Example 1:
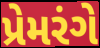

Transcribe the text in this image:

પ્રેમરંગે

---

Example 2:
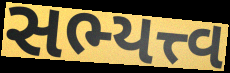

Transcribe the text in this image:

સભ્યત્ત્વ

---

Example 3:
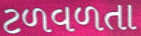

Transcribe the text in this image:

ટળવળતા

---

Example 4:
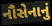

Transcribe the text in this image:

નૌસેનાનું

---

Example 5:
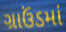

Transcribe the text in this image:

ગ્રાઉંડમાં